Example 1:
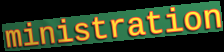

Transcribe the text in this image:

ministration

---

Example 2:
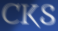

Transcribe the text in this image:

CKS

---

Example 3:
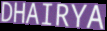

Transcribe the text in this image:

DHAIRYA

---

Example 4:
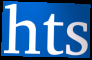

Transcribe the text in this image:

hts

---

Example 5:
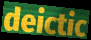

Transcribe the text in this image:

deictic